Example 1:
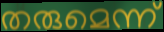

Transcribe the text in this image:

തരുമെന്ന്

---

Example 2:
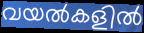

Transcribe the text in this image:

വയൽകളിൽ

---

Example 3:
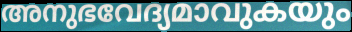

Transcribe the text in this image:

അനുഭവേദ്യമാവുകയും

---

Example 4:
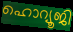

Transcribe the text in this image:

ഹൊറ്യൂജി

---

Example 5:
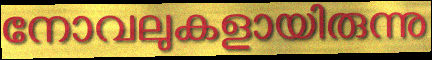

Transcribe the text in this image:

നോവലുകളായിരുന്നു